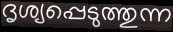
ദൃശ്യപ്പെടുത്തുന്ന